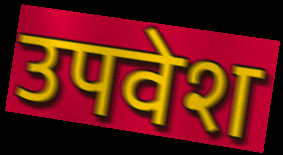
उपवेश